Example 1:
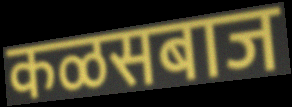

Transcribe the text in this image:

कळसबाज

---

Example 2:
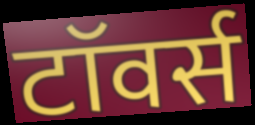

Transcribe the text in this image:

टॉवर्स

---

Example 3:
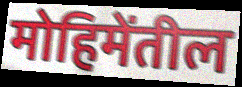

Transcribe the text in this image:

मोहिमेंतील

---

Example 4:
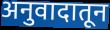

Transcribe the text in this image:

अनुवादातून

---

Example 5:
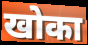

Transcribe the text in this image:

खोका